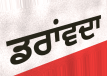
ਡਰਾਂਵਦਾ